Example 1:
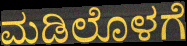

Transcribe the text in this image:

ಮಡಿಲೊಳಗೆ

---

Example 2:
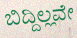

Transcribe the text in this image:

ಬಿದ್ದಿಲ್ಲವೇ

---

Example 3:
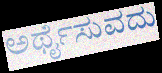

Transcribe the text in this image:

ಅರ್ಥೈಸುವದು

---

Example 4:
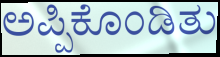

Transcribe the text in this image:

ಅಪ್ಪಿಕೊಂಡಿತು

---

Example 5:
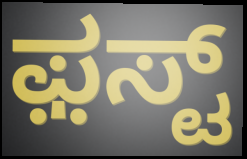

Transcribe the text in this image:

ಫ಼ಸ್ಟ್